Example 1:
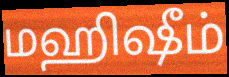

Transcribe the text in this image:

மஹிஷீம்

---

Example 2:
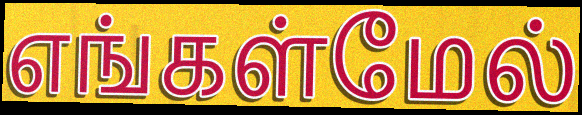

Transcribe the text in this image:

எங்கள்மேல்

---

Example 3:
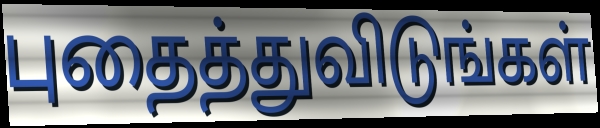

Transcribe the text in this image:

புதைத்துவிடுங்கள்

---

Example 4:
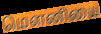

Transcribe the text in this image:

மௌனியை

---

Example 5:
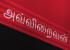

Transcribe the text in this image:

அவ்விறைவன்